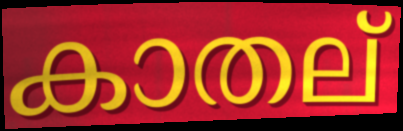
കാതല്